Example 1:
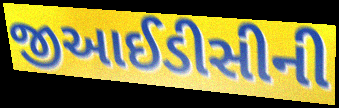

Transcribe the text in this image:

જીઆઈડીસીની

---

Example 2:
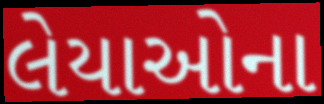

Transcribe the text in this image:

લેયાઓના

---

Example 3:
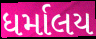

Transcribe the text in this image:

ધર્માલય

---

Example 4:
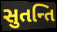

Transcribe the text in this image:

સુતન્તિ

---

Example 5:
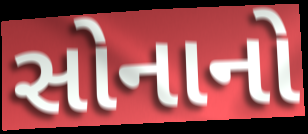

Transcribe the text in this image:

સોનાનો